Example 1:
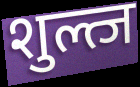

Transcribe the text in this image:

शुल्त्ज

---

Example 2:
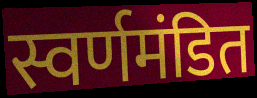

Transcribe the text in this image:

स्वर्णमंडित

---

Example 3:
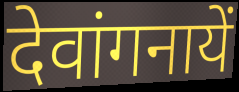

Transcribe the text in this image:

देवांगनायें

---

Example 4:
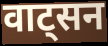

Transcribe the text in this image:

वाट्सन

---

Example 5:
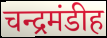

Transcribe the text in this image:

चन्द्रमंडीह